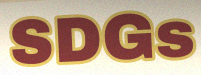
SDGs